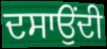
ਦਸਾਉਂਦੀ